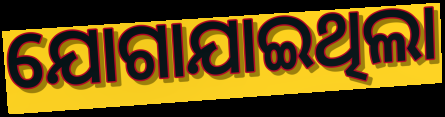
ଯୋଗାଯାଇଥିଲା